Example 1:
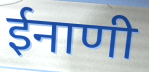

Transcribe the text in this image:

ईनाणी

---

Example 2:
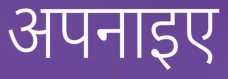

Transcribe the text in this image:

अपनाइए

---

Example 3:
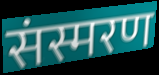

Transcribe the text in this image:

संस्मरण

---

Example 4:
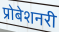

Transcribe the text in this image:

प्रोबेशनरी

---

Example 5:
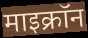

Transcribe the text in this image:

माइक्रॉन